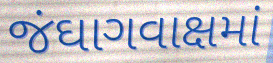
જંઘાગવાક્ષમાં